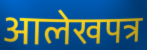
आलेखपत्र